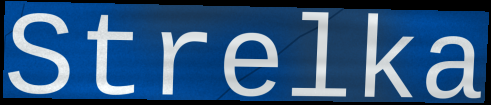
Strelka